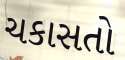
ચકાસતો